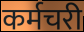
कर्मचरी